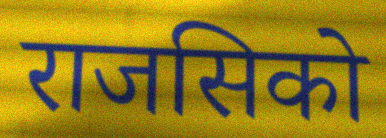
राजसिको